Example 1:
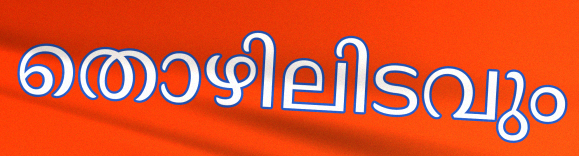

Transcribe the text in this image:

തൊഴിലിടവും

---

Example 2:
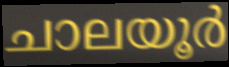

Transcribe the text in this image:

ചാലയൂർ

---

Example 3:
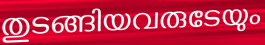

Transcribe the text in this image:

തുടങ്ങിയവരുടേയും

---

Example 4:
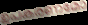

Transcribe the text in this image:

ഉപകരണമോ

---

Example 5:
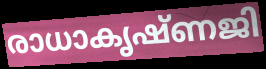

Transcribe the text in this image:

രാധാകൃഷ്ണജി